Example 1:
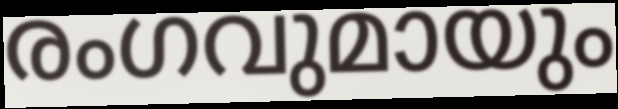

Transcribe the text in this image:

രംഗവുമായും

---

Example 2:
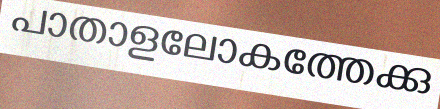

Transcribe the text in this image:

പാതാളലോകത്തേക്കു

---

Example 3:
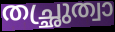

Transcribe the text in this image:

തച്ഛ്രുത്വാ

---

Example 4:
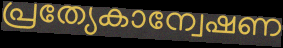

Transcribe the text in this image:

പ്രത്യേകാന്വേഷണ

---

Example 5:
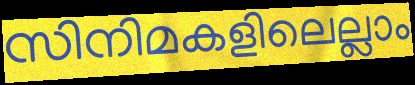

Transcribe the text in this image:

സിനിമകളിലെല്ലാം